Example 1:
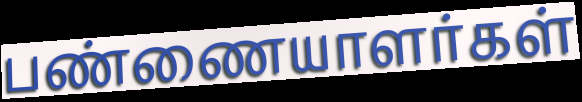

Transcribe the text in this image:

பண்ணையாளர்கள்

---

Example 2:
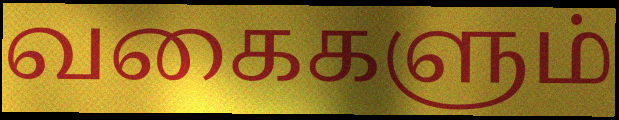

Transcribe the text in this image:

வகைகளும்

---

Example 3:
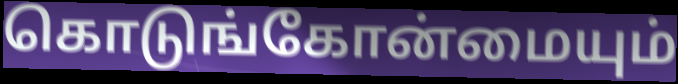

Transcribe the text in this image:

கொடுங்கோன்மையும்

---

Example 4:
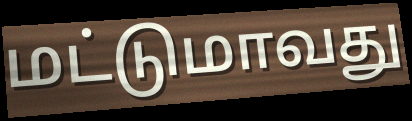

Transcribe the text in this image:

மட்டுமாவது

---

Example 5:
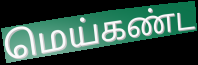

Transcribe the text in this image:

மெய்கண்ட